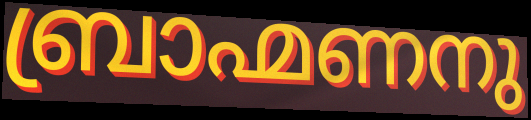
ബ്രാഹ്മണനു